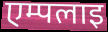
एम्पलाइ